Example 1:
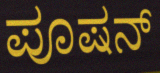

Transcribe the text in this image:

ಪೂಷನ್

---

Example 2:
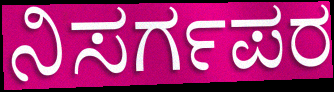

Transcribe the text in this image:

ನಿಸರ್ಗಪರ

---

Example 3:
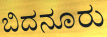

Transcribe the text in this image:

ಬಿದನೂರು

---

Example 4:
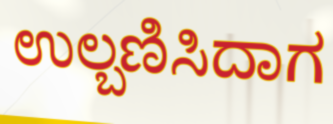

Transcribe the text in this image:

ಉಲ್ಬಣಿಸಿದಾಗ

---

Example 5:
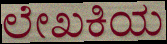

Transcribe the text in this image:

ಲೇಖಕಿಯ